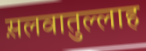
स़लवातुल्लाह